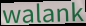
walank